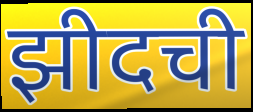
झीदची